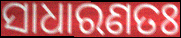
ସାଧାରଣତଃ